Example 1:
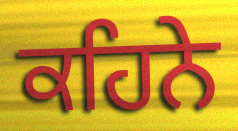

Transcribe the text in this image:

ਕਹਿਨੇ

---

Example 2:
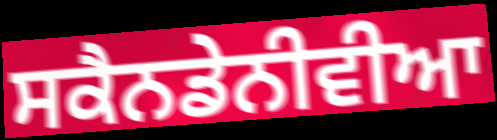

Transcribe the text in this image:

ਸਕੈਨਡੇਨੀਵੀਆ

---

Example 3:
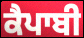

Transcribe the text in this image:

ਕੈਪਾਬੀ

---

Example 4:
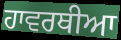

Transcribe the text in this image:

ਹਾਵਰਥੀਆ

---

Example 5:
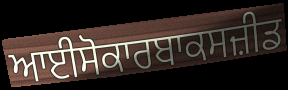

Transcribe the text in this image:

ਆਈਸੋਕਾਰਬਾਕਸਜ਼ੀਡ